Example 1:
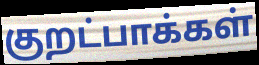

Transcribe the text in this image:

குறட்பாக்கள்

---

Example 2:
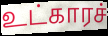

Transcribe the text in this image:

உட்காரச்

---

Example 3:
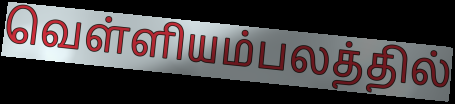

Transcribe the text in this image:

வெள்ளியம்பலத்தில்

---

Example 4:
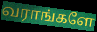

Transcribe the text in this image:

வராங்களே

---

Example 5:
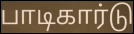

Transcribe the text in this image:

பாடிகார்டு